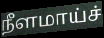
நீளமாய்ச்